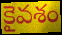
కైవశం